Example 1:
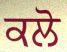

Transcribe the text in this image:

ਕਲੋ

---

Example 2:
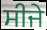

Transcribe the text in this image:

ਸੀਜੇ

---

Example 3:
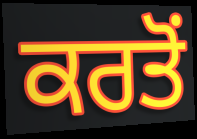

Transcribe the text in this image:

ਕਰਤੋਂ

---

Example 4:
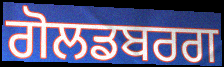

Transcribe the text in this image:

ਗੋਲਡਬਰਗ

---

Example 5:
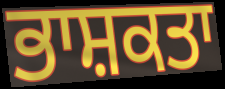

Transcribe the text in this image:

ਭਾਸ਼ਕਤਾ